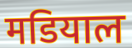
मडियाल